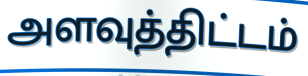
அளவுத்திட்டம்